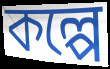
কল্পে